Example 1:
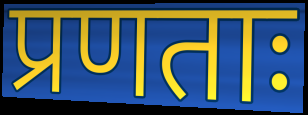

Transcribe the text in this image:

प्रणताः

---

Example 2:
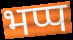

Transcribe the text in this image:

भप्प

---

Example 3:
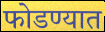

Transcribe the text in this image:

फोडण्यात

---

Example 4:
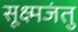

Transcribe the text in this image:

सूक्ष्मजंतु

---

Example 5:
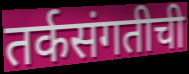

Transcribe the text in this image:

तर्कसंगतीची